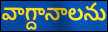
వాగ్దానాలను